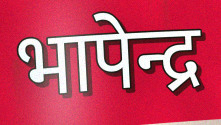
भापेन्द्र